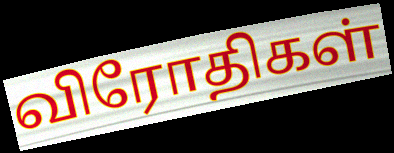
விரோதிகள்